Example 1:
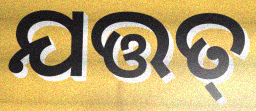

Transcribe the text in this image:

ଯତ୍ତତ୍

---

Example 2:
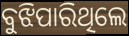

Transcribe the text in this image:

ବୁଝିପାରିଥିଲେ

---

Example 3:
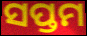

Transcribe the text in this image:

ସପ୍ତମ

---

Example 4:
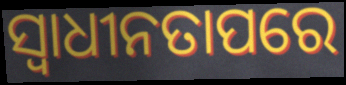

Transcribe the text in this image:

ସ୍ୱାଧୀନତାପରେ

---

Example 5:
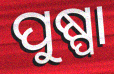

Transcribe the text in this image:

ପୁଷ୍ପା